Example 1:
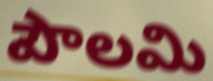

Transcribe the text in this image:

పౌలమి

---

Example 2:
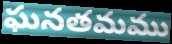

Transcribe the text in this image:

ఘనతమము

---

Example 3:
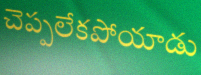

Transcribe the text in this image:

చెప్పలేకపోయాడు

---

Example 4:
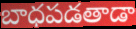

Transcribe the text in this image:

బాధపడతాడా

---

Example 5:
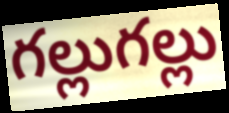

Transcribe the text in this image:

గల్లుగల్లు